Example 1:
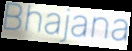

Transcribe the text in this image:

Bhajana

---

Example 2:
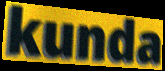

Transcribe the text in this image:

kunda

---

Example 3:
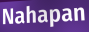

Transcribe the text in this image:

Nahapan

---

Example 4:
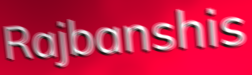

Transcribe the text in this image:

Rajbanshis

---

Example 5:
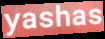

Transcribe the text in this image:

yashas